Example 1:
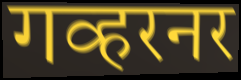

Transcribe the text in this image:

गव्हरनर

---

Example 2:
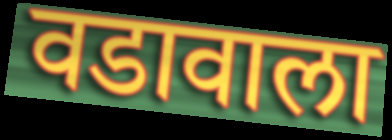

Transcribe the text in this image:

वडावाला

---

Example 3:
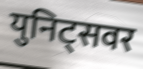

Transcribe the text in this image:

युनिट्सवर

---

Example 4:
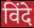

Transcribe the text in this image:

विंदे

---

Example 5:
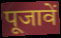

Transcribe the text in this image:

पूजावें